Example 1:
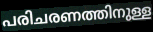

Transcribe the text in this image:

പരിചരണത്തിനുള്ള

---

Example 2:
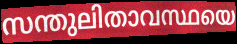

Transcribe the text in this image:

സന്തുലിതാവസ്ഥയെ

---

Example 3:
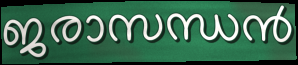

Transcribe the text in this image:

ജരാസന്ധൻ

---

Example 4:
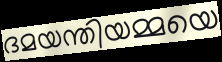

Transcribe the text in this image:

ദമയന്തിയമ്മയെ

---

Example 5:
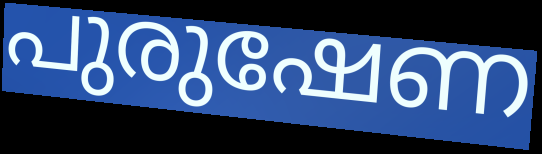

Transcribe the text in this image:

പുരുഷേണ